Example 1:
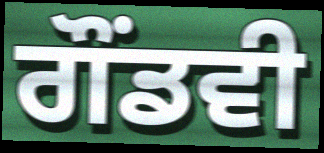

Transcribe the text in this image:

ਗੌਂਡਵੀ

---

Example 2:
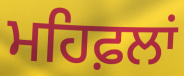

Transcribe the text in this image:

ਮਹਿਫ਼ਲਾਂ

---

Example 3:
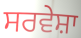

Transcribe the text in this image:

ਸਰਵੇਸ਼ਾ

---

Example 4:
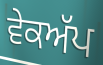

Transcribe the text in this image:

ਵੇਕਅੱਪ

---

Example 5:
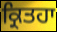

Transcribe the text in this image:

ਕ੍ਰਿਤਹਾ